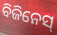
ବିଜିନେସ୍